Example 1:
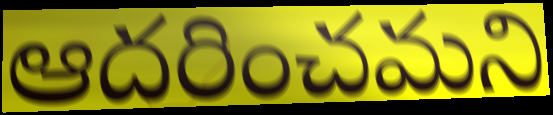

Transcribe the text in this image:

ఆదరించమని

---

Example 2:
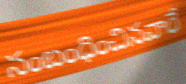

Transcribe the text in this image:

సంబంధించినవారే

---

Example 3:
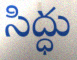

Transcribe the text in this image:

సిద్ధు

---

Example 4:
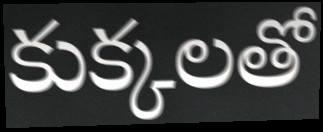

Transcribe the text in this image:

కుక్కలతో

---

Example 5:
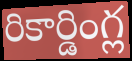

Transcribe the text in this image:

రికార్డింగ్ల